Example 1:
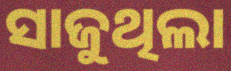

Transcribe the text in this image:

ସାଜୁଥିଲା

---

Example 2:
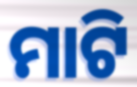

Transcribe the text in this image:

ମାଟି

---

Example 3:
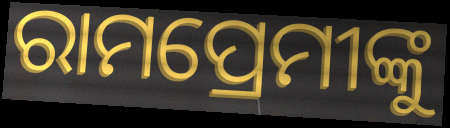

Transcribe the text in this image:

ରାମପ୍ରେମୀଙ୍କୁ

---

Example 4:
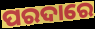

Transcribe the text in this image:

ପରଦାରେ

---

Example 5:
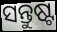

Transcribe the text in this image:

ସନ୍ତୁଷ୍ଟ